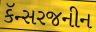
કૅન્સરજનીન